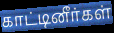
காட்டினீர்கள்